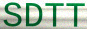
SDTT